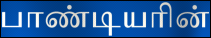
பாண்டியரின்